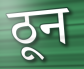
ठून